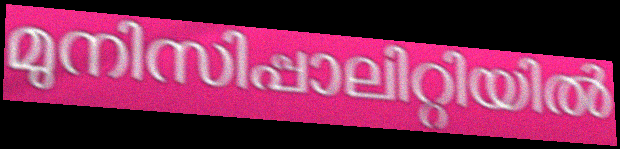
മുനിസിപ്പാലിറ്റിയിൽ